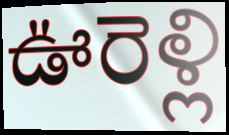
ఊరెళ్లి